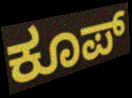
ಕೂಪ್